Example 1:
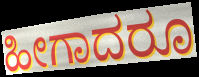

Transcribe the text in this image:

ಹೀಗಾದರೂ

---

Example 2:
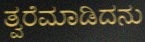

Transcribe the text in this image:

ತ್ವರೆಮಾಡಿದನು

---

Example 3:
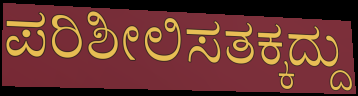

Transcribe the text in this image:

ಪರಿಶೀಲಿಸತಕ್ಕದ್ದು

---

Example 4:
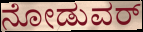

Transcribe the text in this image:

ನೋಡುವರ್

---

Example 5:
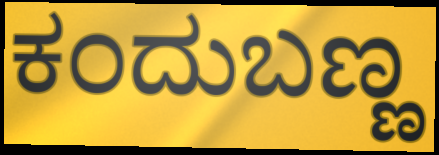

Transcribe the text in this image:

ಕಂದುಬಣ್ಣ